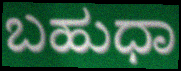
ಬಹುಧಾ